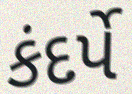
કંદર્પે